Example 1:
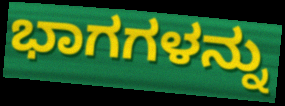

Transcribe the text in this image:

ಭಾಗಗಳನ್ನು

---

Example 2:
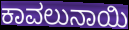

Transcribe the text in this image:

ಕಾವಲುನಾಯಿ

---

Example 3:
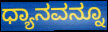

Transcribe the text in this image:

ಧ್ಯಾನವನ್ನೂ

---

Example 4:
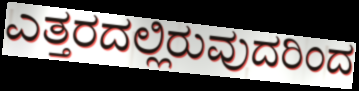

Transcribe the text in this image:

ಎತ್ತರದಲ್ಲಿರುವುದರಿಂದ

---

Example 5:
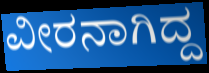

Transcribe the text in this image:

ವೀರನಾಗಿದ್ದ